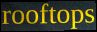
rooftops